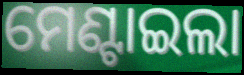
ମେଣ୍ଟାଇଲା